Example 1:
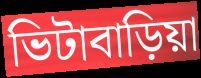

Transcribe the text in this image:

ভিটাবাড়িয়া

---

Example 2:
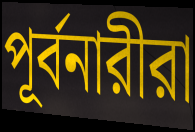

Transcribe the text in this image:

পূর্বনারীরা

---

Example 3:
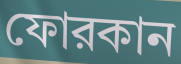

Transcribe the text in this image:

ফোরকান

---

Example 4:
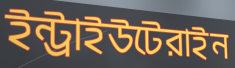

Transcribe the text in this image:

ইন্ট্রাইউটেরাইন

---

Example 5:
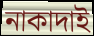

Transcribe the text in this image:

নাকাদাই